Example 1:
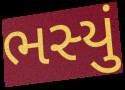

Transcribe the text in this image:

ભસ્યું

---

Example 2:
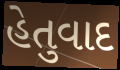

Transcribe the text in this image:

હેતુવાદ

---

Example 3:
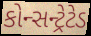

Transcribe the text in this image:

કોન્સન્ટ્રેટેડ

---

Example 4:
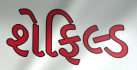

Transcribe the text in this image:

શેફિલ્ડ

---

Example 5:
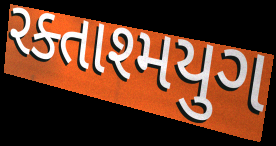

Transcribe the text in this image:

રક્તાશ્મયુગ